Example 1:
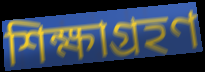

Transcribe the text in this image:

শিক্ষাগ্ৰহণ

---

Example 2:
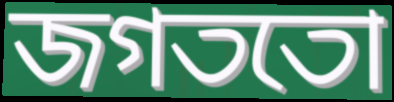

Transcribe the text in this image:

জগততো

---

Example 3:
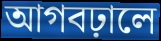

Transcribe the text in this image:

আগবঢ়ালে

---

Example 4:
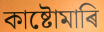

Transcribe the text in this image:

কাষ্টোমাৰি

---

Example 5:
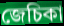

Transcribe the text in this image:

জেচিকা